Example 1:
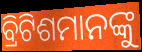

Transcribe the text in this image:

ବ୍ରିଟିଶମାନଙ୍କୁ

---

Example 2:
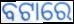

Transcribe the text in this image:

ବଟାରେ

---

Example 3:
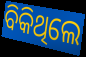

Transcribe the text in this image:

ବିକିଥିଲେ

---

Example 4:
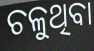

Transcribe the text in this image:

ଚଳୁଥିବା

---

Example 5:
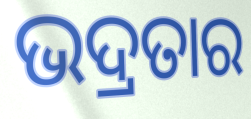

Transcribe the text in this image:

ଭଦ୍ରତାର